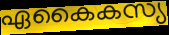
ഏകൈകസ്യ